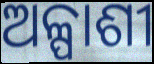
ଅଳ୍ପାଶୀ